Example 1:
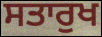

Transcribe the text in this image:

ਸਤਾਰੁਖ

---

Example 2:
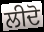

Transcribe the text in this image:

ਲੀਦੋ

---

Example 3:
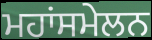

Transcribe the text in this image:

ਮਹਾਂਸਮੇਲਨ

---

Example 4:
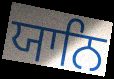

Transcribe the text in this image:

ਯਾਨਿ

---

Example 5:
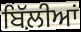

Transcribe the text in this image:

ਬਿੱਲ਼ੀਆਂ